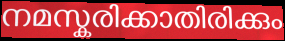
നമസ്കരിക്കാതിരിക്കും